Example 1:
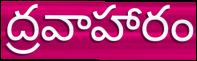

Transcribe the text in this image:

ద్రవాహారం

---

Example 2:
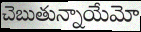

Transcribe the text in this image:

చెబుతున్నాయేమో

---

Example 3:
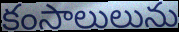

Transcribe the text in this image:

కంసాలులును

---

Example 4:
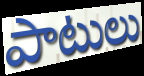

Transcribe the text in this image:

పాటులు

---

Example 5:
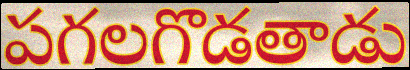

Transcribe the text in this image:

పగలగొడతాడు